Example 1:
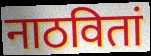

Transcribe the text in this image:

नाठवितां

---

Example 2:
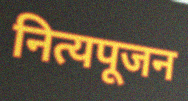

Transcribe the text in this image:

नित्यपूजन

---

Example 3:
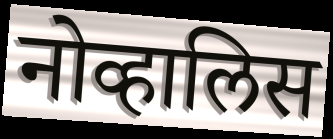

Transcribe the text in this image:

नोव्हालिस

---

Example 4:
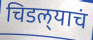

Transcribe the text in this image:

चिडल्याचं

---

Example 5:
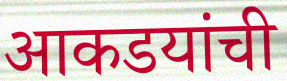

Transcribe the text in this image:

आकडयांची